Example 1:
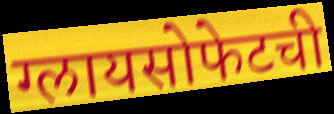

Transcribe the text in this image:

ग्लायसोफेटची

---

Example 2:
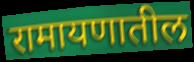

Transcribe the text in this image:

रामायणातील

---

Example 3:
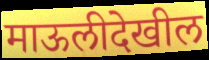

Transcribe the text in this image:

माऊलीदेखील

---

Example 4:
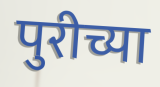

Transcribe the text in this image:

पुरीच्या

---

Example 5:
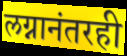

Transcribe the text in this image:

लग्नानंतरही